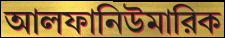
আলফানিউমারিক